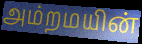
அம்றமயின்